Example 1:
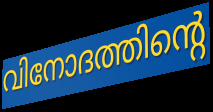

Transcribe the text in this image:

വിനോദത്തിന്റെ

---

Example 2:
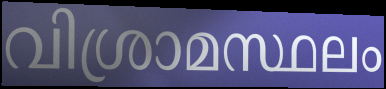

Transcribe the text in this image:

വിശ്രാമസ്ഥലം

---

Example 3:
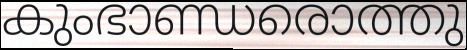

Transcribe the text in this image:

കുംഭാണ്ഡരൊത്തു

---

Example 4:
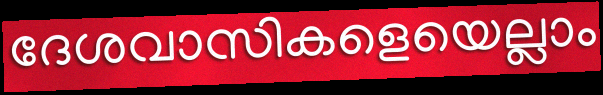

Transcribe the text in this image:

ദേശവാസികളെയെല്ലാം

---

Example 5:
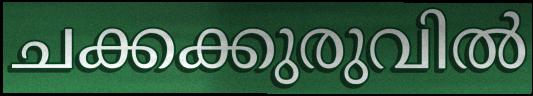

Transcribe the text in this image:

ചക്കക്കുരുവിൽ